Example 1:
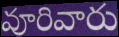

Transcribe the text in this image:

వూరివారు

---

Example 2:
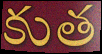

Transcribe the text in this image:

కుత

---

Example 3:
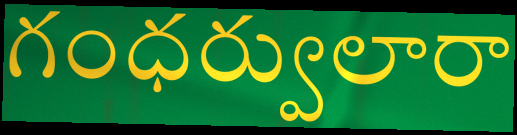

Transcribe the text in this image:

గంధర్వులారా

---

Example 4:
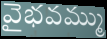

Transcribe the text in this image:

వైభవమ్ము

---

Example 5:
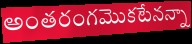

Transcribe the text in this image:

అంతరంగమొకటేనన్నా